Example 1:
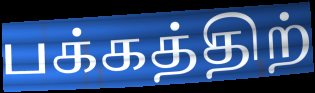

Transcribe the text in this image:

பக்கத்திற்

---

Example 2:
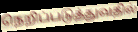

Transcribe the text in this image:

நெறிப்படுத்துவதில்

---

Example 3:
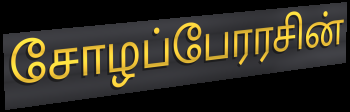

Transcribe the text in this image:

சோழப்பேரரசின்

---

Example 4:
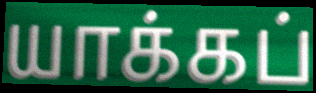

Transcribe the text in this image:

யாக்கப்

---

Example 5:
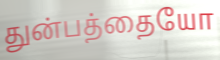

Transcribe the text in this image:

துன்பத்தையோ